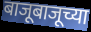
बाजूबाजूच्या